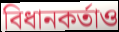
বিধানকর্তাও